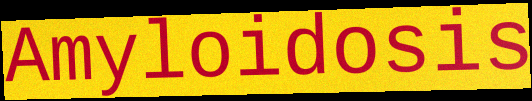
Amyloidosis